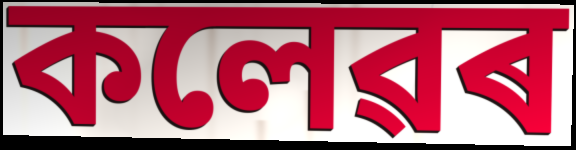
কলেৱৰ